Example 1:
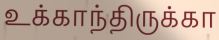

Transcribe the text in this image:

உக்காந்திருக்கா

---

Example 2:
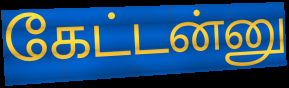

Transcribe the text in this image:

கேட்டன்னு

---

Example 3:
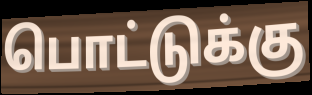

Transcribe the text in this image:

பொட்டுக்கு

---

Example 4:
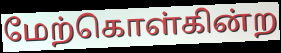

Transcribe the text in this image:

மேற்கொள்கின்ற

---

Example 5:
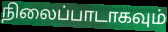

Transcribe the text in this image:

நிலைப்பாடாகவும்